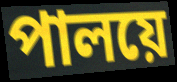
পালয়ে